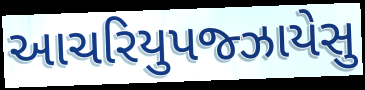
આચરિયુપજ્ઝાયેસુ